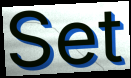
Set